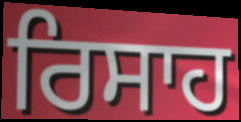
ਰਿਸਾਹ